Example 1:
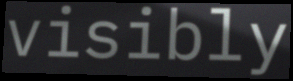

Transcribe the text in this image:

visibly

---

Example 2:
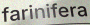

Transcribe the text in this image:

farinifera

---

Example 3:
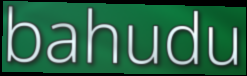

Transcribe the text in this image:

bahudu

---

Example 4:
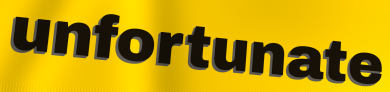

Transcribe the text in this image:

unfortunate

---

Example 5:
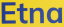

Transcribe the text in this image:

Etna